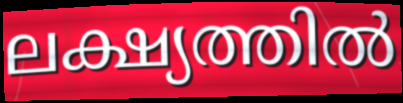
ലക്ഷ്യത്തിൽ